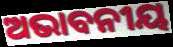
ଅଭାବନୀୟ